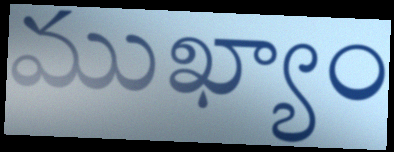
ముఖ్యాం